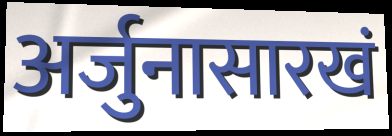
अर्जुनासारखं